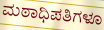
ಮಠಾಧಿಪತಿಗಳೂ